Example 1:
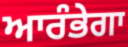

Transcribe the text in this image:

ਆਰੰਭੇਗਾ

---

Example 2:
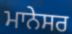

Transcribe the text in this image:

ਮਾਨੇਸਰ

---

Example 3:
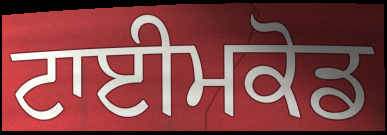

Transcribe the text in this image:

ਟਾਈਮਕੋਡ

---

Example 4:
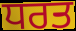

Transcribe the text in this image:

ਧਰਤ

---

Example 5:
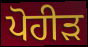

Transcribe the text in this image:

ਪੋਹੀੜ